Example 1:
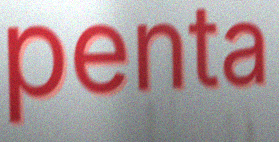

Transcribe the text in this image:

penta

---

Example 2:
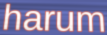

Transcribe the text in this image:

harum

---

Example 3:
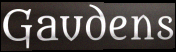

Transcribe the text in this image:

Gaudens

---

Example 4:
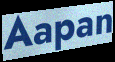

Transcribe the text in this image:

Aapan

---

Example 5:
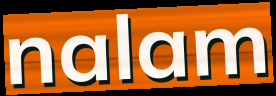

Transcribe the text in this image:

nalam